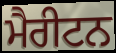
ਮੈਰੀਟਨ